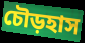
চৌড়হাস